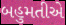
બહુમતીએ